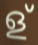
ള്